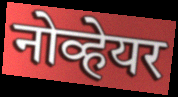
नोव्हेयर